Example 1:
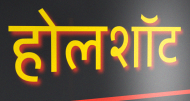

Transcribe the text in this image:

होलशॉट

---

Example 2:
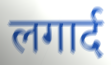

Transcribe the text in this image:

लगार्द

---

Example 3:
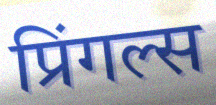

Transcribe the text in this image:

प्रिंगल्स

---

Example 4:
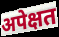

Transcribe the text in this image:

अपेक्षत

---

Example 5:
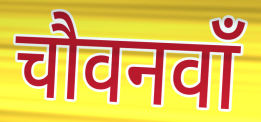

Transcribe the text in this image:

चौवनवाँ